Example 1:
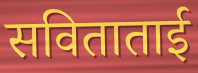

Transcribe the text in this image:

सविताताई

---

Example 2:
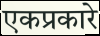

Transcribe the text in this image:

एकप्रकारे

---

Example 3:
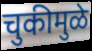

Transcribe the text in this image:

चुकीमुळे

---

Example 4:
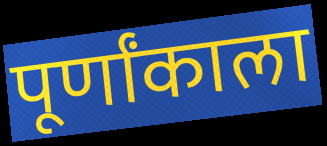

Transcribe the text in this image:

पूर्णांकाला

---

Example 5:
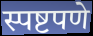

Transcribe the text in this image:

स्पष्टपणे